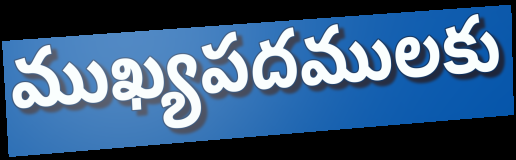
ముఖ్యపదములకు